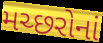
મચ્છરોનાં